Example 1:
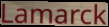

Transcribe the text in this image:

Lamarck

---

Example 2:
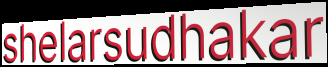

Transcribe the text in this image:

shelarsudhakar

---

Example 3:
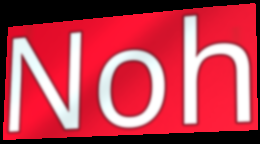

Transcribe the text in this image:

Noh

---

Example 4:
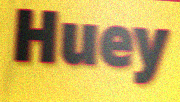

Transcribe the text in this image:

Huey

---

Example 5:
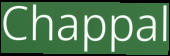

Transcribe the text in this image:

Chappal